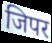
जिपर